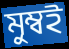
মুম্বই